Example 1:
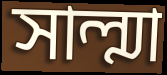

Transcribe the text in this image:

সাল্মা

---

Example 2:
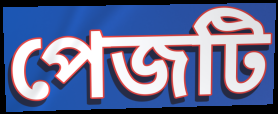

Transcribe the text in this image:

পেজটি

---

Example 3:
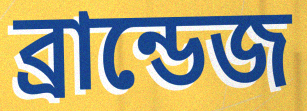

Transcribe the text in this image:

ব্রান্ডেজ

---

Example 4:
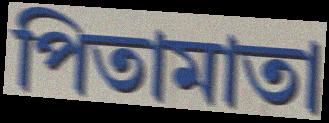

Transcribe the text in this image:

পিতামাতা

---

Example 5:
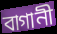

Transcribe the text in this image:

বাগানী